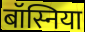
बॉस्निया